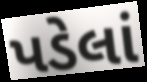
પડેલાં